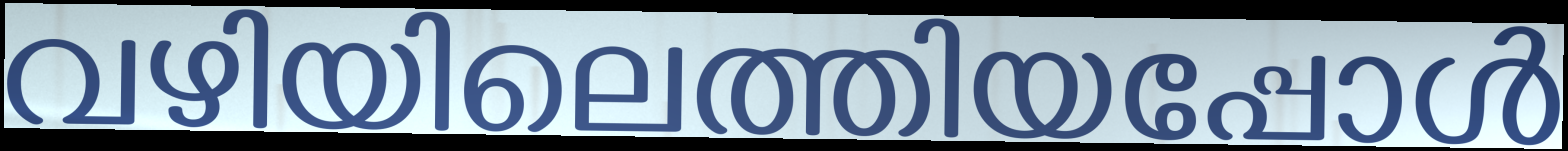
വഴിയിലെത്തിയപ്പോൾ